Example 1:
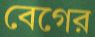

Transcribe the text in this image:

বেগের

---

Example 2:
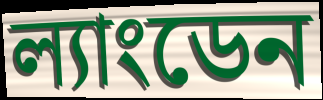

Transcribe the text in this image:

ল্যাংডেন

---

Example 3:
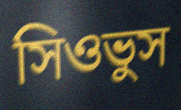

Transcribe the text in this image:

সিওভুস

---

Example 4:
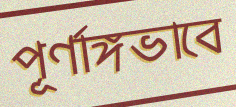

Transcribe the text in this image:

পূর্ণাঙ্গভাবে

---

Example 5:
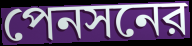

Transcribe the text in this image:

পেনসনের